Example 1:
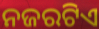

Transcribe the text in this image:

ନଜରଟିଏ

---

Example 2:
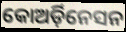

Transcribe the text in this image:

କୋଅର୍ଡ଼ିନେସନ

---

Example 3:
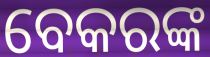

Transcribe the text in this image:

ବେକରଙ୍କ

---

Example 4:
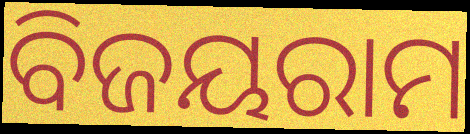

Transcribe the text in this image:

ବିଜୟରାମ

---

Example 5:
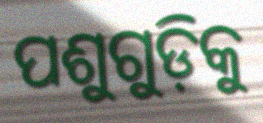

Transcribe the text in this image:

ପଶୁଗୁଡ଼ିକୁ